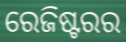
ରେଜିଷ୍ଟରର